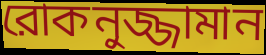
রোকনুজ্জামান